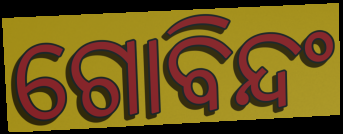
ଗୋବିନ୍ଦଂ